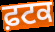
ਫ਼ਟਕ